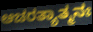
ಆಚರತ್ಯಾತ್ಮನಃ